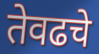
तेवढचे